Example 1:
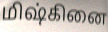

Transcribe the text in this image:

மிஷ்கினை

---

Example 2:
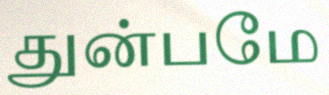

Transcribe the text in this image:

துன்பமே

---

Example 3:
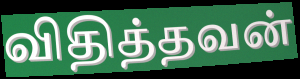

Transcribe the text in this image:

விதித்தவன்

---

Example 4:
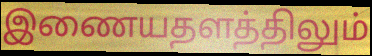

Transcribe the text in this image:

இணையதளத்திலும்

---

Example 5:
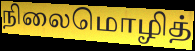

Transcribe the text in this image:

நிலைமொழித்